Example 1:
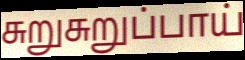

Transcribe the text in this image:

சுறுசுறுப்பாய்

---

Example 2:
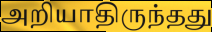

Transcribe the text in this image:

அறியாதிருந்தது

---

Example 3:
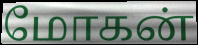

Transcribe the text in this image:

மோகன்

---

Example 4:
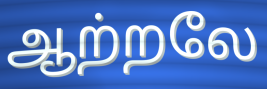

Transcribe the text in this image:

ஆற்றலே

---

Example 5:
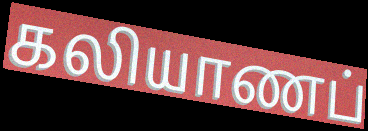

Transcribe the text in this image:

கலியாணப்